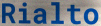
Rialto